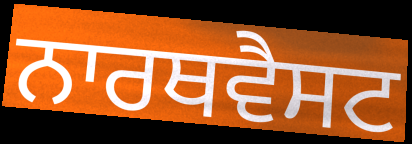
ਨਾਰਥਵੈਸਟ